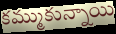
కమ్ముకున్నాయి